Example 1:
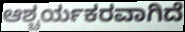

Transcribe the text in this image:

ಆಶ್ಚರ್ಯಕರವಾಗಿದೆ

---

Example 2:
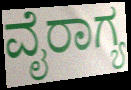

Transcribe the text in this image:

ವೈರಾಗ್ಯ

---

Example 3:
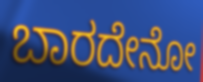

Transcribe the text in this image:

ಬಾರದೇನೋ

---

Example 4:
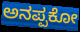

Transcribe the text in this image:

ಅನಪ್ಪಕೋ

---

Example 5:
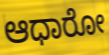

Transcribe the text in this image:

ಆಧಾರೋ